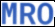
MRO